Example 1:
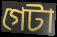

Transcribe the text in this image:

গেটা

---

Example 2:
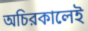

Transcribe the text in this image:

অচিরকালেই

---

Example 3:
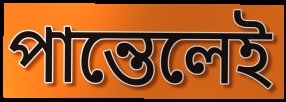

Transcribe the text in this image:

পান্তেলেই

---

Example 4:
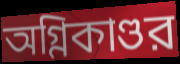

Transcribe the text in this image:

অগ্নিকাণ্ডর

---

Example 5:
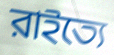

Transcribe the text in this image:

রাইত্যে